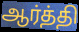
ஆர்த்தி